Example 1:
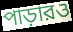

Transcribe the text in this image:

পাড়ারও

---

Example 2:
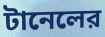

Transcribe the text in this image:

টানেলের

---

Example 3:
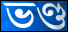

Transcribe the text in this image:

ভণ্ড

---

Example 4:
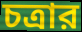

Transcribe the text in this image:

চত্রার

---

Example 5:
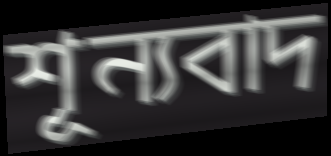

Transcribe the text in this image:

শূন্যবাদ